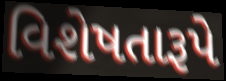
વિશેષતારૂપે